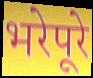
भरेपूरे